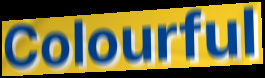
Colourful